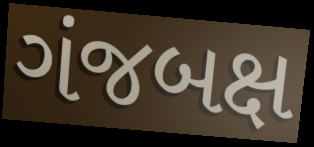
ગંજબક્ષ